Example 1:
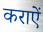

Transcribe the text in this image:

कराऐं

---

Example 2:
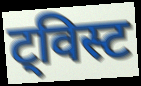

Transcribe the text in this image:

ट्विस्ट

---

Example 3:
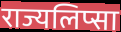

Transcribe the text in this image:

राज्यलिप्सा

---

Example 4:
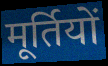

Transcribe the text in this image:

मूर्तियों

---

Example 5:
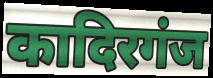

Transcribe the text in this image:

कादिरगंज